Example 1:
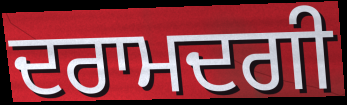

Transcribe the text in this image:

ਦਰਾਮਦਗੀ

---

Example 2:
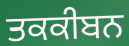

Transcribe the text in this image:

ਤਕਕੀਬਨ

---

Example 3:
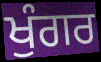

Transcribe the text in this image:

ਖੁੰਗਰ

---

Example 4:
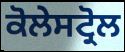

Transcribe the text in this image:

ਕੋਲੇਸਟ੍ਰੋਲ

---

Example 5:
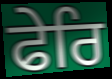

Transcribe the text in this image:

ਫੇਰਿ